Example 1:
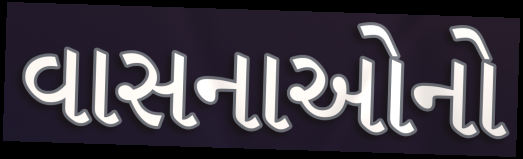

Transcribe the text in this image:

વાસનાઓનો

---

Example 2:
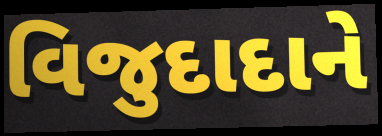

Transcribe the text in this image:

વિજુદાદાને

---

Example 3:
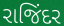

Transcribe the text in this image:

રાજિંદર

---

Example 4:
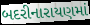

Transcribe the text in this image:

બદરીનારાયણમાં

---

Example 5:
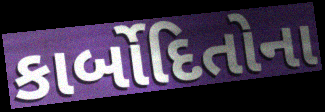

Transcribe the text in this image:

કાર્બોદિતોના